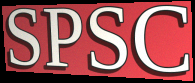
SPSC